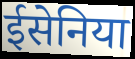
ईसेनिया